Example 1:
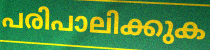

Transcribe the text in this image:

പരിപാലിക്കുക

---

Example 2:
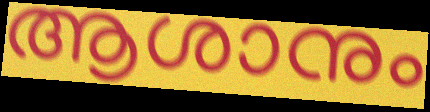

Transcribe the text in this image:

ആശാനും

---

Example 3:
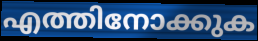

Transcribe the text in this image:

എത്തിനോക്കുക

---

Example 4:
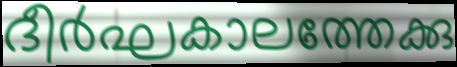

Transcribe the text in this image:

ദീർഘകാലത്തേക്കു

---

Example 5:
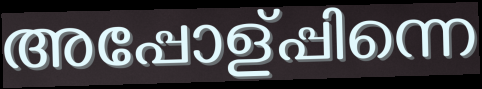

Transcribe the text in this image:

അപ്പോള്പ്പിന്നെ